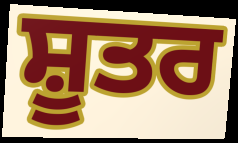
ਸ਼ੂਤਰ